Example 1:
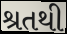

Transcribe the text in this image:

શ્રતથી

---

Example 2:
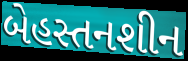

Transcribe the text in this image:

બેહસ્તનશીન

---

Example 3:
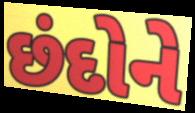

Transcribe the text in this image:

છંદોને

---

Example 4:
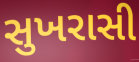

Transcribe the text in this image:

સુખરાસી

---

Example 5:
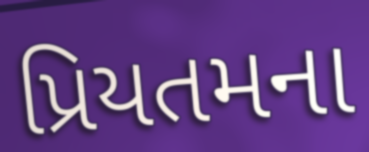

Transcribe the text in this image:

પ્રિયતમના